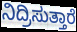
ನಿದ್ರಿಸುತ್ತಾರೆ